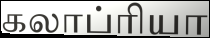
கலாப்ரியா